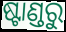
ଷ୍ଟାଣ୍ଡରୁ